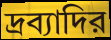
দ্রব্যাদির